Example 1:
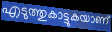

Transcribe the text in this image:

എടുത്തുകാട്ടുകയാണ്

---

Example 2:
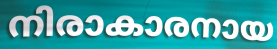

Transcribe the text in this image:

നിരാകാരനായ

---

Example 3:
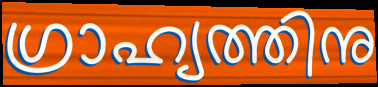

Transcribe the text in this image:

ഗ്രാഹ്യത്തിനു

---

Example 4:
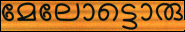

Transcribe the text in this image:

മേലോട്ടൊരു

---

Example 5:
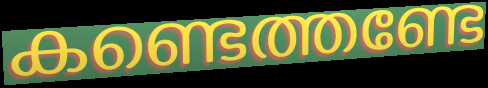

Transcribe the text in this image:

കണ്ടെത്തണ്ടേ